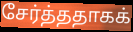
சேர்த்ததாகக்